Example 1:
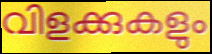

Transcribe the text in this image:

വിളക്കുകളും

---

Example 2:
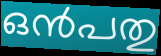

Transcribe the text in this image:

ഒൻപതു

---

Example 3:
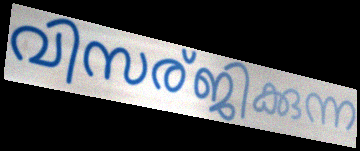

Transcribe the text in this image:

വിസര്ജിക്കുന്ന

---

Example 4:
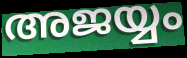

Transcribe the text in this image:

അജയ്യം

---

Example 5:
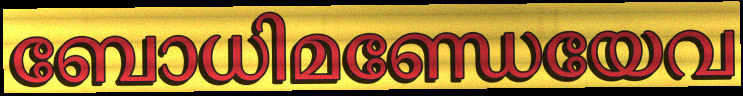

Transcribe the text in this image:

ബോധിമണ്ഡേയേവ